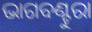
ଭାଗବଣ୍ଟୁରା